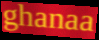
ghanaa